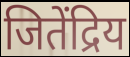
जितेंद्रिय